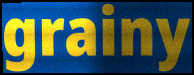
grainy